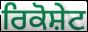
ਰਿਕੋਸ਼ੇਟ